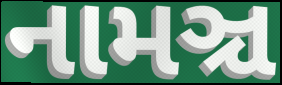
નામઞ્ચ